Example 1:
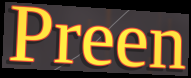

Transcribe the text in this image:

Preen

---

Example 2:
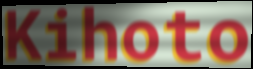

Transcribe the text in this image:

Kihoto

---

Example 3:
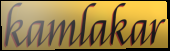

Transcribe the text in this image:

kamlakar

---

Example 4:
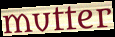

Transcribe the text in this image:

mutter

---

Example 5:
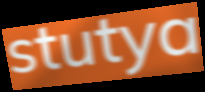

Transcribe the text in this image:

stutya